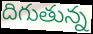
దిగుతున్న